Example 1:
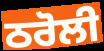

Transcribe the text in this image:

ਠਰੋਲੀ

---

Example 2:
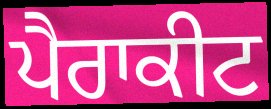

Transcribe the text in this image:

ਪੈਰਾਕੀਟ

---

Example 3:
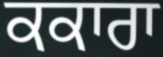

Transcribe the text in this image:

ਕਕਾਰਾ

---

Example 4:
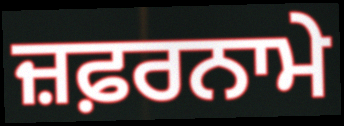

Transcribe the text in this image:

ਜ਼ਫ਼ਰਨਾਮੇ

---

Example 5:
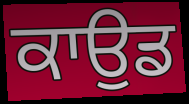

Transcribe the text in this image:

ਕਾਉਡ